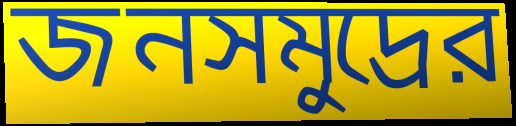
জনসমুদ্রের